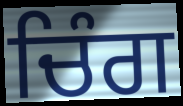
ਚਿੰਗ